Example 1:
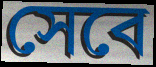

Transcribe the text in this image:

সেবে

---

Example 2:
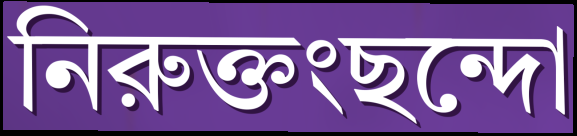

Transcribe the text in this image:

নিরুক্তংছন্দো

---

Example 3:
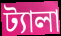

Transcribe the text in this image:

ট্যালা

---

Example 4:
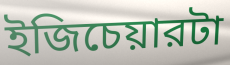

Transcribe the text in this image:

ইজিচেয়ারটা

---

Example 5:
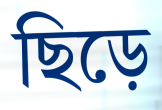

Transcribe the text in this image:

ছিড়ে